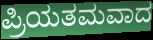
ಪ್ರಿಯತಮವಾದ